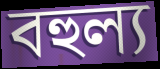
বহুল্য